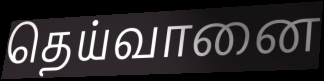
தெய்வானை